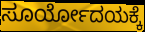
ಸೂರ್ಯೋದಯಕ್ಕೆ